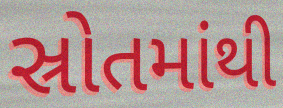
સ્રોતમાંથી